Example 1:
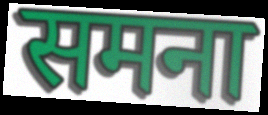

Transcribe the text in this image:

समना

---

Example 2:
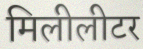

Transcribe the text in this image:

मिलीलीटर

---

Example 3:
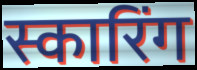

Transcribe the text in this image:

स्कारिंग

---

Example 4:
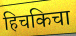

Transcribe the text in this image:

हिचकिचा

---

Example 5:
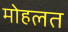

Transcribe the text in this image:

मोहलत